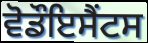
ਵੋਡੌਇਸੈਂਟਸ